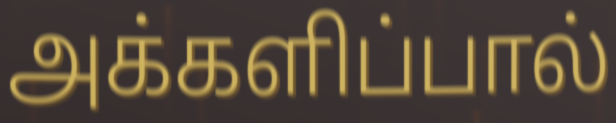
அக்களிப்பால்